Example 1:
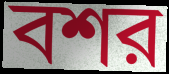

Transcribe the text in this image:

বশর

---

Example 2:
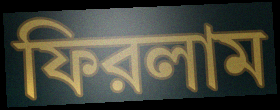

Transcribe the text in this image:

ফিরলাম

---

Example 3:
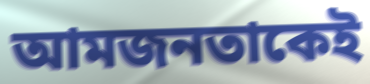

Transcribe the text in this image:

আমজনতাকেই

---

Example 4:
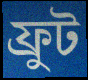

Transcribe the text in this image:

ফ্রুট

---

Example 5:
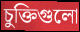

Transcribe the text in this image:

চুক্তিগুলো